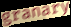
granary